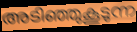
അടിഞ്ഞുകൂടുന്ന